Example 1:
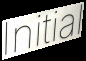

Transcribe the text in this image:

Initial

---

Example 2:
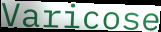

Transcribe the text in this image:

Varicose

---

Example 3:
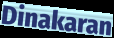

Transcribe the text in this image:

Dinakaran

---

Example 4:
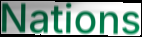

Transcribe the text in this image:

Nations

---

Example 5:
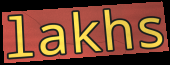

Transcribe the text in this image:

lakhs